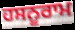
ਹਸਨੂਰਾਮ